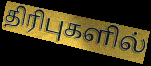
திரிபுகளில்